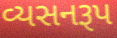
વ્યસનરૂપ